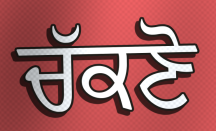
ਚੱਕਣੋ